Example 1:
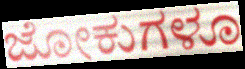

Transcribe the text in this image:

ಜೋಕುಗಳೂ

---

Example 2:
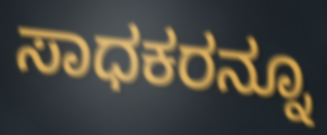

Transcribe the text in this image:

ಸಾಧಕರನ್ನೂ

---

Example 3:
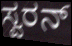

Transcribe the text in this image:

ಸ್ವರನ್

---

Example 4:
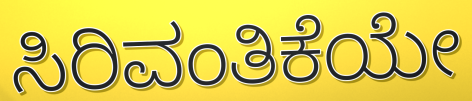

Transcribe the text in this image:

ಸಿರಿವಂತಿಕೆಯೇ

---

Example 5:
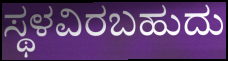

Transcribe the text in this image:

ಸ್ಥಳವಿರಬಹುದು